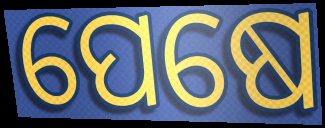
ପେଷେ